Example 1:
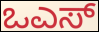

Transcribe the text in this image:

ಒಎಸ್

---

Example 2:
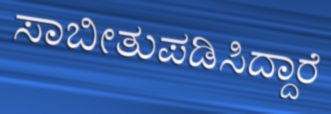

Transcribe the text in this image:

ಸಾಬೀತುಪಡಿಸಿದ್ದಾರೆ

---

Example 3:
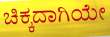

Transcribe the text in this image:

ಚಿಕ್ಕದಾಗಿಯೇ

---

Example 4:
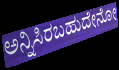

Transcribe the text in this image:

ಅನ್ನಿಸಿರಬಹುದೇನೋ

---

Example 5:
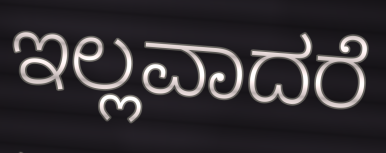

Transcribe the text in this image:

ಇಲ್ಲವಾದರೆ